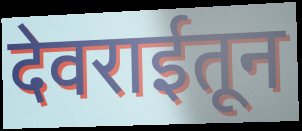
देवराईतून